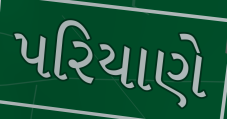
પરિયાણે